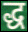
द्ध